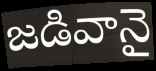
జడివానై